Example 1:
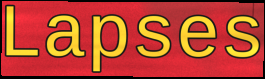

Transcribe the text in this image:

Lapses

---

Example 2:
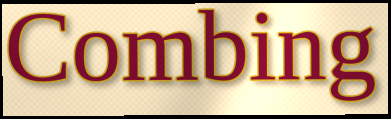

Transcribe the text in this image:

Combing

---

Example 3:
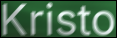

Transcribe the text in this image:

Kristo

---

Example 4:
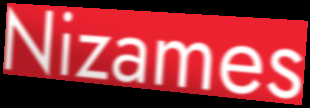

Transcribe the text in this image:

Nizames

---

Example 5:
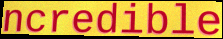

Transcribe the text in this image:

ncredible